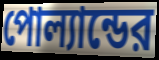
পোল্যান্ডের